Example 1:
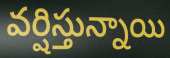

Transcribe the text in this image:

వర్షిస్తున్నాయి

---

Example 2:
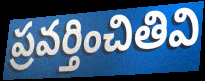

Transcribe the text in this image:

ప్రవర్తించితివి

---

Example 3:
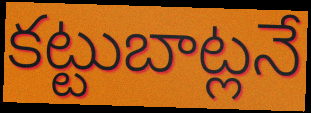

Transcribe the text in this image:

కట్టుబాట్లనే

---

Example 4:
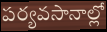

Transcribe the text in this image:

పర్యవసానాల్లో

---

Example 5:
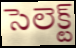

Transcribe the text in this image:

సెలెక్ట్